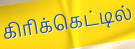
கிரிக்கெட்டில்